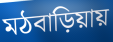
মঠবাড়িয়ায়